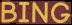
BING